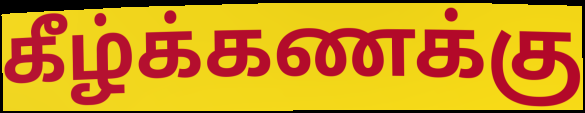
கீழ்க்கணக்கு